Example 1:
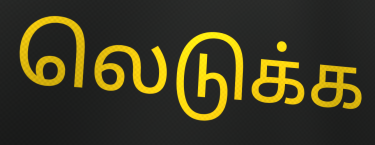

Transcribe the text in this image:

லெடுக்க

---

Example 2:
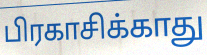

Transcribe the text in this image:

பிரகாசிக்காது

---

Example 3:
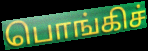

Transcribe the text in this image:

பொங்கிச்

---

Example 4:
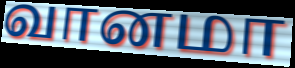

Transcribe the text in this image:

வானமா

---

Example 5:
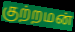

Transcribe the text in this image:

குற்றமன்